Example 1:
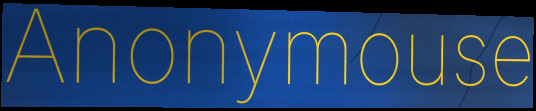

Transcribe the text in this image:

Anonymouse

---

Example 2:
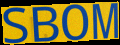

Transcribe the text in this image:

SBOM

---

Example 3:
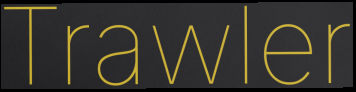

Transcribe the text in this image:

Trawler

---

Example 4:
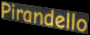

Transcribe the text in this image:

Pirandello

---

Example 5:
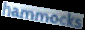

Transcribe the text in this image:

hammocks